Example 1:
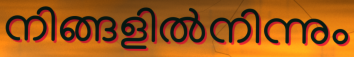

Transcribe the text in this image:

നിങ്ങളിൽനിന്നും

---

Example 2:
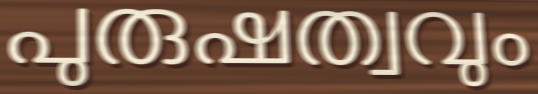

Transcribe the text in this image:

പുരുഷത്വവും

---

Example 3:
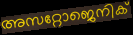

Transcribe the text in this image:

അസറ്റോജെനിക്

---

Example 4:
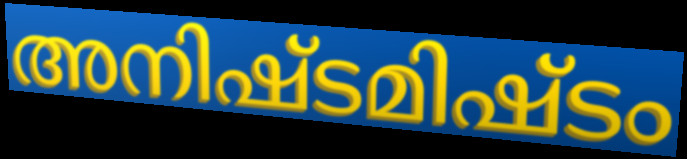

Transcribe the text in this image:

അനിഷ്ടമിഷ്ടം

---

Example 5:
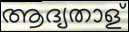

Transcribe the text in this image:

ആദ്യതാള്